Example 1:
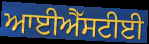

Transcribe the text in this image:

ਆਈਐੱਸਟੀਈ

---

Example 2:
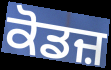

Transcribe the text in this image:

ਕੋਡਜ਼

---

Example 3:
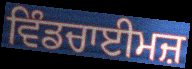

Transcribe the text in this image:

ਵਿੰਡਚਾਈਮਜ਼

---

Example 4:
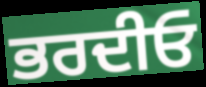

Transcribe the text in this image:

ਭਰਦੀਓ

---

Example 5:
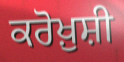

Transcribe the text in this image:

ਕਰੋਖ਼ੁਸ਼ੀ